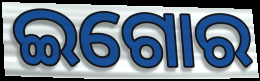
ଇଗୋର